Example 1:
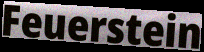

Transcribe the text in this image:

Feuerstein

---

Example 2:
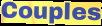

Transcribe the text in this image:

Couples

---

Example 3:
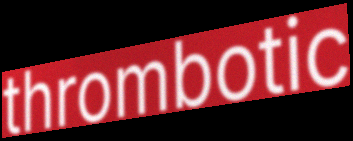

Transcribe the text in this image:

thrombotic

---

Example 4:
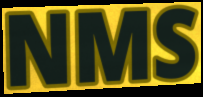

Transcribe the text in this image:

NMS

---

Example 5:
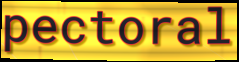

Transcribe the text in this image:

pectoral